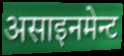
असाइनमेन्ट